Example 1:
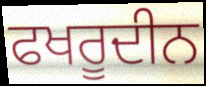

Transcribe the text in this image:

ਫਖਰੂਦੀਨ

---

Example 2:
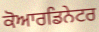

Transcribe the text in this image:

ਕੋਆਰਡਿਨੇਟਰ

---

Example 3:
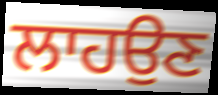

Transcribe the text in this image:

ਲਾਹਉਣ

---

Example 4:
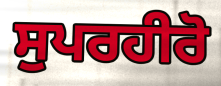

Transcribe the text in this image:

ਸੁਪਰਹੀਰੋ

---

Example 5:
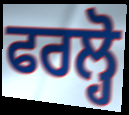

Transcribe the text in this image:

ਫਰਲ੍ਹੋ